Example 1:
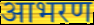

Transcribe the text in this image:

आभरण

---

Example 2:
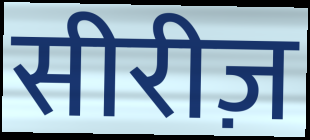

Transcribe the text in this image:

सीरीज़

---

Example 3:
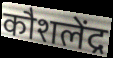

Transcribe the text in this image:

कौशलेंद्र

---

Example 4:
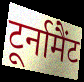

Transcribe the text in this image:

टूर्नामैंट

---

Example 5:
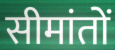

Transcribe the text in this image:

सीमांतों